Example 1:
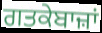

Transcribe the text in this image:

ਗਤਕੇਬਾਜ਼ਾਂ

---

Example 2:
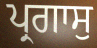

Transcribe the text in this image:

ਪ੍ਰਗਾਸੁ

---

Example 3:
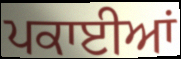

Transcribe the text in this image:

ਪਕਾਈਆਂ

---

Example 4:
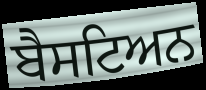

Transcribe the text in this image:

ਬੈਸਟਿਅਨ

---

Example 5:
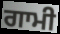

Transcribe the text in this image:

ਗਾਮੀ